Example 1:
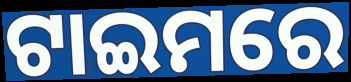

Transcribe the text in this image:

ଟାଇମରେ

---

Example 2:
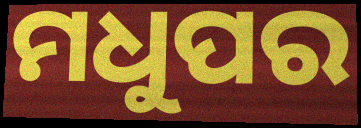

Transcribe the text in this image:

ମଧୁପର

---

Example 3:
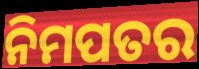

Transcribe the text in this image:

ନିମପତର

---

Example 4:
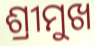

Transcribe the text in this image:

ଶ୍ରୀମୁଖ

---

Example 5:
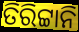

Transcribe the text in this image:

ତିରିଟ୍ଟାନି